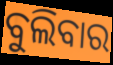
ବୁଲିବାର